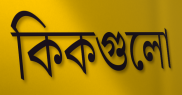
কিকগুলো